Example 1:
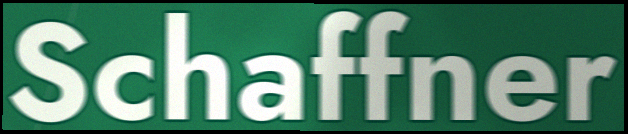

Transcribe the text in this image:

Schaffner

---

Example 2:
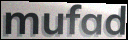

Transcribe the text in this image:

mufad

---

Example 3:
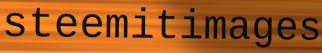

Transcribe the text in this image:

steemitimages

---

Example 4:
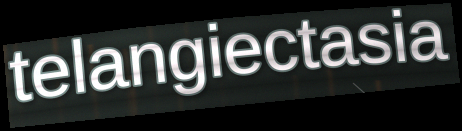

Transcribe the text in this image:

telangiectasia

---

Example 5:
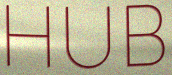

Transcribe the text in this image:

HUB